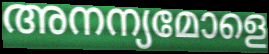
അനന്യമോളെ